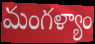
మంగళ్యాం